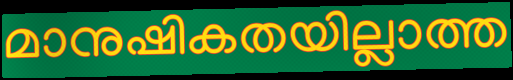
മാനുഷികതയില്ലാത്ത